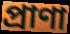
প্রাণা